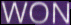
WON